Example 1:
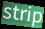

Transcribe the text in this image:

strip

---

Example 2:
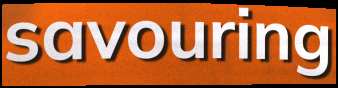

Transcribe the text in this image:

savouring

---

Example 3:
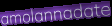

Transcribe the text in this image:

amolannadate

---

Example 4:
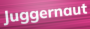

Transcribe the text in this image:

Juggernaut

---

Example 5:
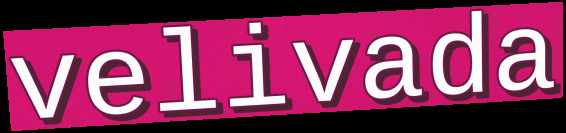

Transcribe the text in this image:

velivada